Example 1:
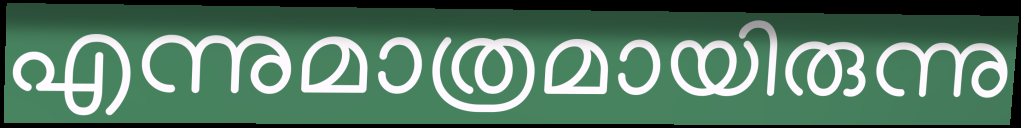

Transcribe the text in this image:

എന്നുമാത്രമായിരുന്നു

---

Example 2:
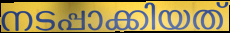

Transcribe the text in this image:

നടപ്പാക്കിയത്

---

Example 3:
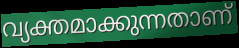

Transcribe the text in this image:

വ്യക്തമാക്കുന്നതാണ്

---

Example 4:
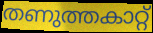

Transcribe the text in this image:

തണുത്തകാറ്റ്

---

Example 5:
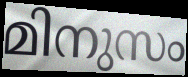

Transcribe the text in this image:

മിനുസം